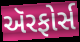
ઍરફોર્સ